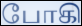
போகி